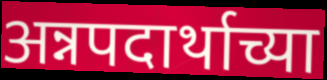
अन्नपदार्थाच्या